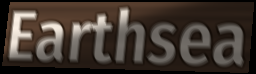
Earthsea